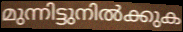
മുന്നിട്ടുനിൽക്കുക